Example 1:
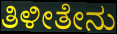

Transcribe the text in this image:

ತಿಳೀತೇನು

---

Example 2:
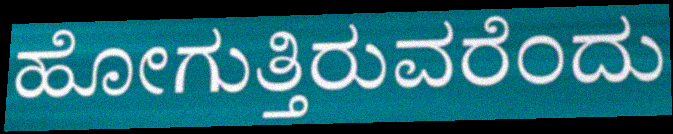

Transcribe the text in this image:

ಹೋಗುತ್ತಿರುವರೆಂದು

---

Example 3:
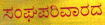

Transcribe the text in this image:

ಸಂಘಪರಿವಾರದ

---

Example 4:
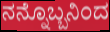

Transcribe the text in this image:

ನನ್ನೊಬ್ಬನಿಂದ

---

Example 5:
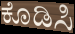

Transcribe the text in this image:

ಕೊಡಿಸಿ